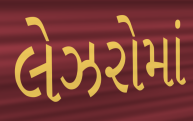
લેઝરોમાં